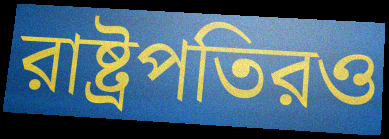
রাষ্ট্রপতিরও